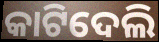
କାଟିଦେଲି